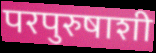
परपुरुषाशी